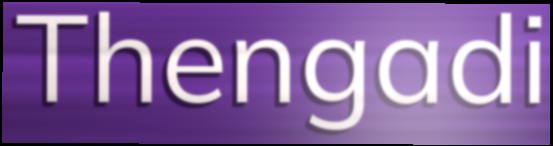
Thengadi